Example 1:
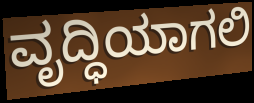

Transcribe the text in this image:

ವೃದ್ಧಿಯಾಗಲಿ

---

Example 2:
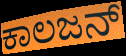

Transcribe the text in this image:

ಕಾಲಜನ್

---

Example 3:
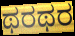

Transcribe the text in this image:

ಥರಥರ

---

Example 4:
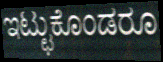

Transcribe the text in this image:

ಇಟ್ಟುಕೊಂಡರೂ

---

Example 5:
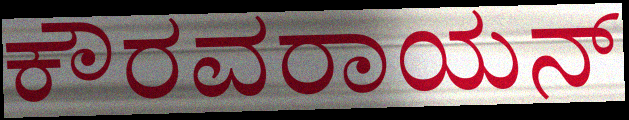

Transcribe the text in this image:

ಕೌರವರಾಯನ್